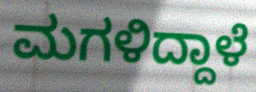
ಮಗಳಿದ್ದಾಳೆ